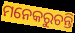
ମନେକରୁଚନ୍ତି